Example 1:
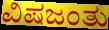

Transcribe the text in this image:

ವಿಷಜಂತು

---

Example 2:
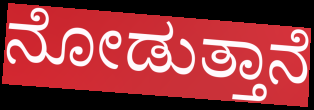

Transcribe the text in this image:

ನೋಡುತ್ತಾನೆ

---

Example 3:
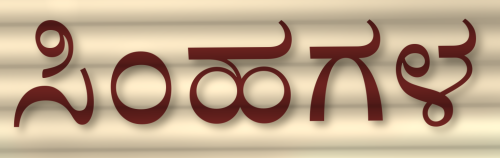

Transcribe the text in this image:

ಸಿಂಹಗಳ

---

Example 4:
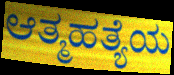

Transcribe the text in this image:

ಆತ್ಮಹತ್ಯೆಯ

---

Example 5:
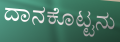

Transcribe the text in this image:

ದಾನಕೊಟ್ಟನು